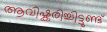
ആവിഷ്കരിച്ചിട്ടുണ്ട്